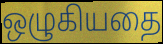
ஒழுகியதை